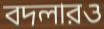
বদলারও